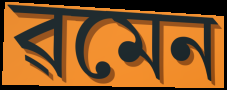
ৱমেন